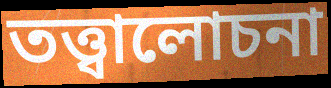
তত্ত্বালোচনা